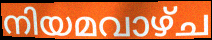
നിയമവാഴ്ച